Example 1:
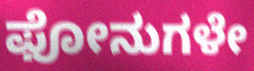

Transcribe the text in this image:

ಫೋನುಗಳೇ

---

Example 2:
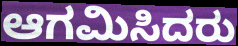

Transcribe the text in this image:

ಆಗಮಿಸಿದರು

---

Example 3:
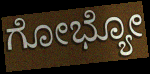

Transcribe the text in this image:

ಗೋಭ್ಯೋ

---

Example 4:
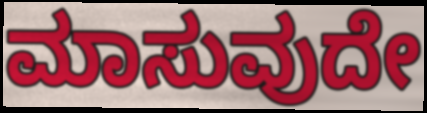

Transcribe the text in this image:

ಮಾಸುವುದೇ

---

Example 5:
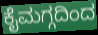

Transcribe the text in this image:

ಕೈಮಗ್ಗದಿಂದ